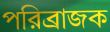
পরিব্রাজক